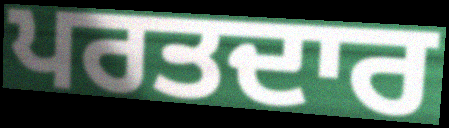
ਪਰਤਦਾਰ